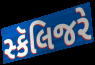
સ્કૅલિજરે